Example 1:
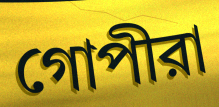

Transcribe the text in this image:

গোপীরা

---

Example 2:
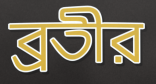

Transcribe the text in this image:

ব্রতীর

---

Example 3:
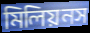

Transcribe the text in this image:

মিলিয়নস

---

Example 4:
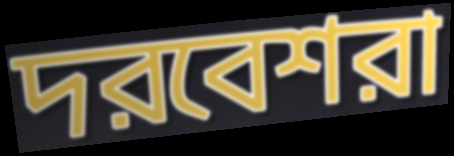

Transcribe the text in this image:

দরবেশরা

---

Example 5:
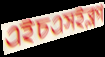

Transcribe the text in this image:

এইচএসইব্লগ